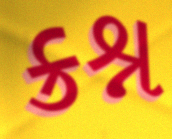
ક્રશ્ન